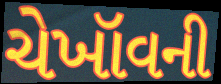
ચેખૉવની